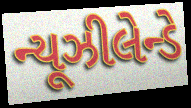
ન્યૂઝીલેન્ડે